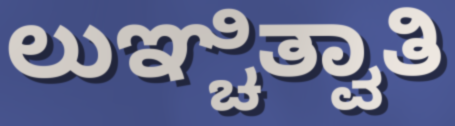
ಲುಞ್ಚಿತ್ವಾತಿ